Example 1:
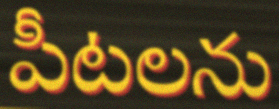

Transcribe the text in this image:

పీటలను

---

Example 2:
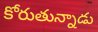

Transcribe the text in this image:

కోరుతున్నాడు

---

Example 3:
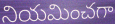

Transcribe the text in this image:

నియమించగా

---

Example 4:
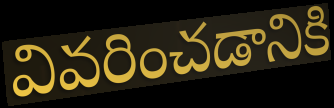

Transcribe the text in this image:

వివరించడానికి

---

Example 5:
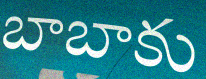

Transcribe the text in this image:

బాబాకు